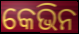
କେଭିନ